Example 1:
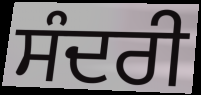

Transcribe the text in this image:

ਸੰਦਰੀ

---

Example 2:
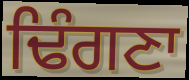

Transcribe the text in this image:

ਢਿੰਗਣਾ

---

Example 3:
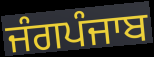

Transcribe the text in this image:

ਜੰਗਪੰਜਾਬ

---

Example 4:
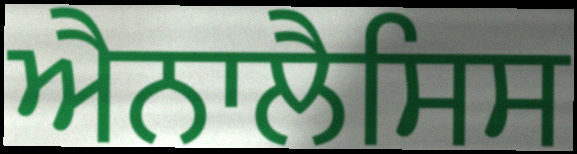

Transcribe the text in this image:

ਐਨਾਲੈਸਿਸ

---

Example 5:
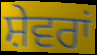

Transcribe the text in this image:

ਸ਼ੇਵਰਾਂ